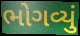
ભોગવ્યું